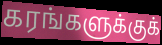
கரங்களுக்குக்